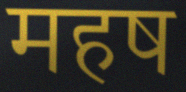
महष